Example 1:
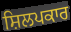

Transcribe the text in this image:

ਸ਼ਿਲਪਕਾਰ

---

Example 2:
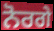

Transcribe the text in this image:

ਨੋਰਗੇ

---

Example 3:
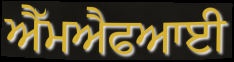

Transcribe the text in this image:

ਐੱਮਐਫਆਈ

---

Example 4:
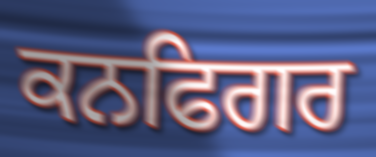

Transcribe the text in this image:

ਕਨਫਿਗਰ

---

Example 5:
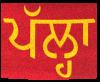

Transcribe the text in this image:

ਪੱਲ੍ਹਾ